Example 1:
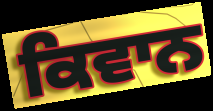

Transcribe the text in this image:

ਕਿਵਾਨ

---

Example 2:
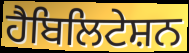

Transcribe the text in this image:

ਹੈਬਿਲਿਟੇਸ਼ਨ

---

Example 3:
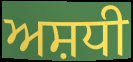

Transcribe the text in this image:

ਅਸ਼ਧੀ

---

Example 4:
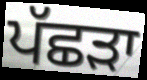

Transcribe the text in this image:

ਪੱਛੜਾ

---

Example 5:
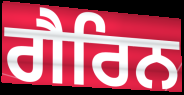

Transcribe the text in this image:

ਗੈਰਿਨ